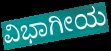
ವಿಭಾಗೀಯ